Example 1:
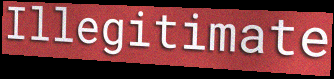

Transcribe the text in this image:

Illegitimate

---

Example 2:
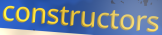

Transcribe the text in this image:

constructors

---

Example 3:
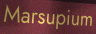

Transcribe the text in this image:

Marsupium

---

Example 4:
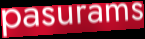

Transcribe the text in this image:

pasurams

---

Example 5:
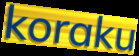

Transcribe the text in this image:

koraku